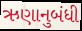
ઋણાનુબંધી